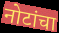
नोटांचा